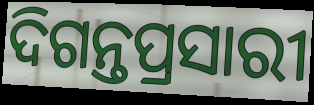
ଦିଗନ୍ତପ୍ରସାରୀ